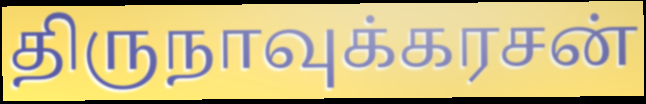
திருநாவுக்கரசன்